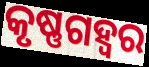
କୃଷ୍ଣଗହ୍ୱର